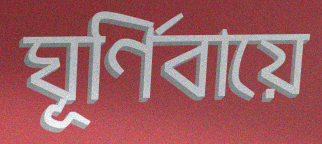
ঘূর্ণিবায়ে